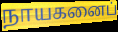
நாயகனைப்